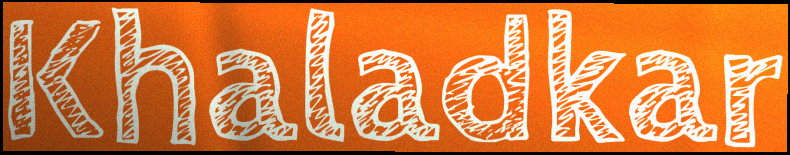
Khaladkar